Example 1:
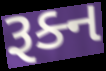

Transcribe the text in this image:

રૂક્ન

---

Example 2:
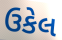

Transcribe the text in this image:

ઉકેલ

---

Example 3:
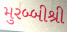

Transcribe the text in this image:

મુરબ્બીશ્રી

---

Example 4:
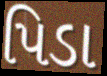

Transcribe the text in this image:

પિડા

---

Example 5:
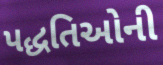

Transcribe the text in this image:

પદ્ધતિઓની